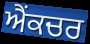
ਐਂਕਚਰ